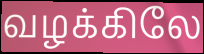
வழக்கிலே